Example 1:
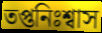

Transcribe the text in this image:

তপ্তনিঃশ্বাস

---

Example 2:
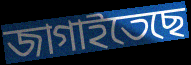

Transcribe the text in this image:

জাগাইতেছে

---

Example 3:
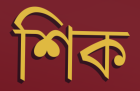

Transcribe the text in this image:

শিক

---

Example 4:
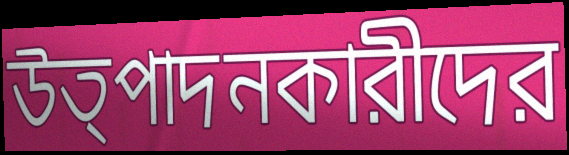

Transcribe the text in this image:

উত্পাদনকারীদের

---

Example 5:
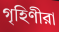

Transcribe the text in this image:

গৃহিণীরা